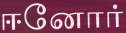
ஈனோர்